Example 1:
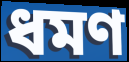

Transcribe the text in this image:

ধমণ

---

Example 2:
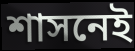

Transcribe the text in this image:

শাসনেই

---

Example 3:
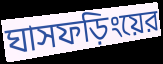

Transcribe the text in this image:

ঘাসফড়িংয়ের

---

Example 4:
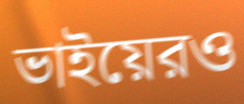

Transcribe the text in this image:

ভাইয়েরও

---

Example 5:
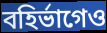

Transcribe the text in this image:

বহির্ভাগেও